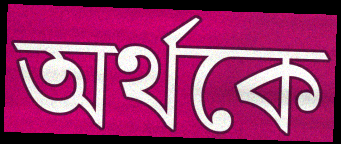
অৰ্থকে